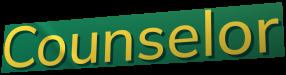
Counselor